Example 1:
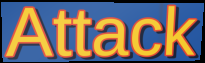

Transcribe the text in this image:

Attack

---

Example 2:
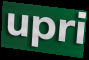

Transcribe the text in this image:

upri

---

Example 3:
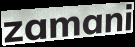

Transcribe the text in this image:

zamani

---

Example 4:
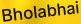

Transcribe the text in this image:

Bholabhai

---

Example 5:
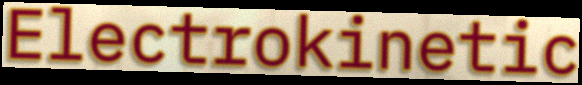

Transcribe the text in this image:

Electrokinetic